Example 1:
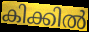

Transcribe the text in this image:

കിക്കിൽ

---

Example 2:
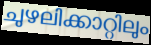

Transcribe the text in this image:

ചുഴലിക്കാറ്റിലും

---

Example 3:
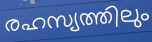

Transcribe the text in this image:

രഹസ്യത്തിലും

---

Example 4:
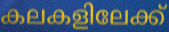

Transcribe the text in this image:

കലകളിലേക്ക്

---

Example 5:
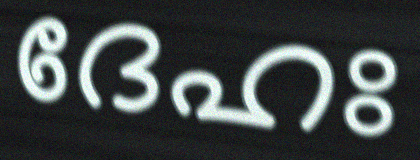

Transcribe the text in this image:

ദേഹഃ